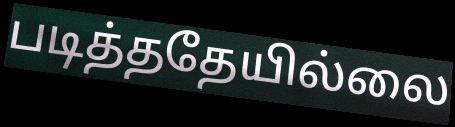
படித்ததேயில்லை